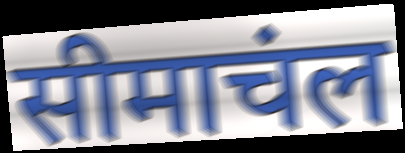
सीमाचंल